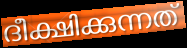
ദീക്ഷിക്കുന്നത്